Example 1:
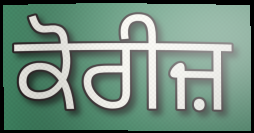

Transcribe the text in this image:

ਕੋਰੀਜ਼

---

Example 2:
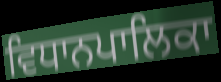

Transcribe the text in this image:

ਵਿਧਾਨਪਾਲਿਕਾ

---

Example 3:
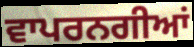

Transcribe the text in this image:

ਵਾਪਰਨਗੀਆਂ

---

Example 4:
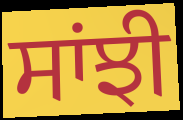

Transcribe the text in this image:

ਸਾਂਝੀ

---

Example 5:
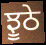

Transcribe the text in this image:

ਝੂਠੇ